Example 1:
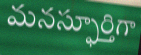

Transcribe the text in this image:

మనస్ఫూర్తిగా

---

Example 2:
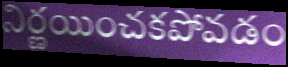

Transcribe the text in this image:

నిర్ణయించకపోవడం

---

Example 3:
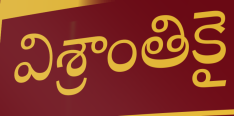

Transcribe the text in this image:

విశ్రాంతికై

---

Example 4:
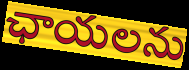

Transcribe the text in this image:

ఛాయలను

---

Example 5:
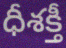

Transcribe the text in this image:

ధీశక్తీ